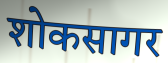
शोकसागर